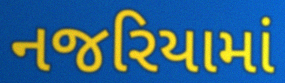
નજરિયામાં